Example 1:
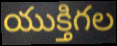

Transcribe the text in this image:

యుక్తిగల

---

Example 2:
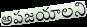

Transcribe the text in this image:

అపజయాలని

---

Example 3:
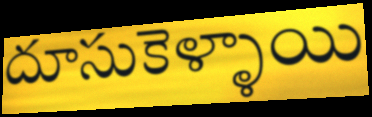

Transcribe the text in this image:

దూసుకెళ్ళాయి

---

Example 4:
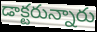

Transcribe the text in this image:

డాక్టరున్నారు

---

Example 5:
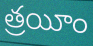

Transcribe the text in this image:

త్రయీం